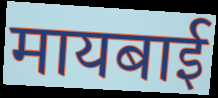
मायबाई